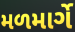
મળમાર્ગે